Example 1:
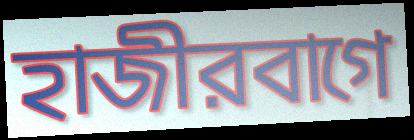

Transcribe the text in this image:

হাজীরবাগে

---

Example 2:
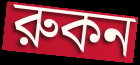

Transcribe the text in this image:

রুকন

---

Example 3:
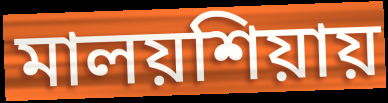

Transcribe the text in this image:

মালয়শিয়ায়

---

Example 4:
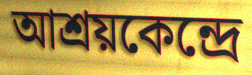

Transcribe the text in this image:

আশ্রয়কেন্দ্রে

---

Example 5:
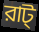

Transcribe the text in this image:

রাট্